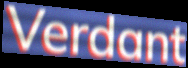
Verdant